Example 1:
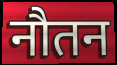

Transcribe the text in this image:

नौतन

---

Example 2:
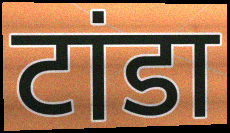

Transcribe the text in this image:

टांडा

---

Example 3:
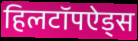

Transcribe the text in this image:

हिलटॉपऐड्स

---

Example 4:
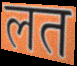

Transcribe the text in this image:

लत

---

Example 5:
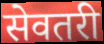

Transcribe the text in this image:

सेवतरी